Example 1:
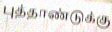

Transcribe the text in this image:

புத்தாண்டுக்கு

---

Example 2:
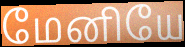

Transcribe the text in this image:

மேனியே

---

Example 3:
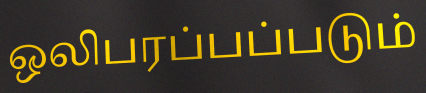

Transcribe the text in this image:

ஒலிபரப்பப்படும்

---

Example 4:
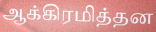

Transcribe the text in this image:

ஆக்கிரமித்தன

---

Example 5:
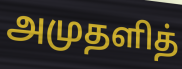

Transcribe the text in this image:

அமுதளித்